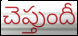
చెప్తుందీ